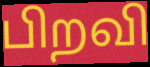
பிறவி